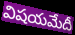
విషయమేదీ